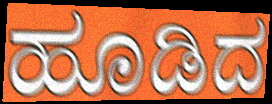
ಹೂಡಿದ